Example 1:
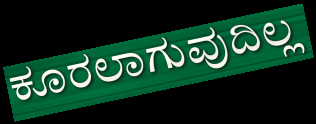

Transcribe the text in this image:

ಕೂರಲಾಗುವುದಿಲ್ಲ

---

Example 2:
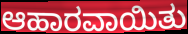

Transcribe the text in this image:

ಆಹಾರವಾಯಿತು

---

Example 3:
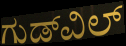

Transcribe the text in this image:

ಗುಡ್‌ವಿಲ್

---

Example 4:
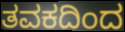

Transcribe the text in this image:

ತವಕದಿಂದ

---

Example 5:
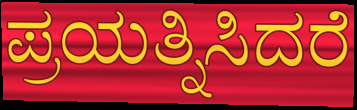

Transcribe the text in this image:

ಪ್ರಯತ್ನಿಸಿದರೆ